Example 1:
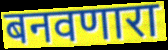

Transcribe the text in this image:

बनवणारा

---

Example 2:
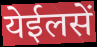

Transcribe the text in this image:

येईलसें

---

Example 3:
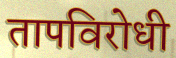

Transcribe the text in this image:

तापविरोधी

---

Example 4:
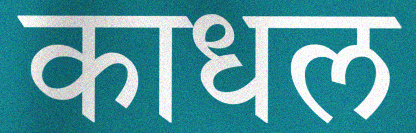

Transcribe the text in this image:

काधल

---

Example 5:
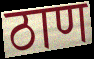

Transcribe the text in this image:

ठाण